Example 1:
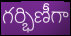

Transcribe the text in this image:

గర్భిణీగా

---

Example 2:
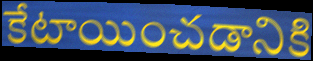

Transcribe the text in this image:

కేటాయించడానికి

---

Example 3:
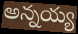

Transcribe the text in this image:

అన్నయ్య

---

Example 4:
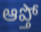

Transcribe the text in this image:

ఆప్తో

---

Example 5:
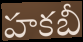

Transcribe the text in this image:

హకబీ